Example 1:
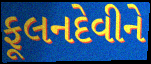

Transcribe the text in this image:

ફૂલનદેવીને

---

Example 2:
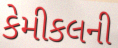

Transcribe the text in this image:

કેમીકલની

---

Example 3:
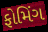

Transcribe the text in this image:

ફોમિંગ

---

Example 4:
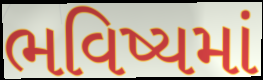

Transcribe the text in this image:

ભવિષ્યમાં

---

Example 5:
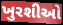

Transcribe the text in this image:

ખુરશીઓ